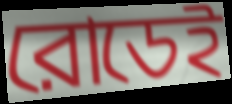
রোডেই